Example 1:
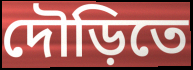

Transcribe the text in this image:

দৌড়িতে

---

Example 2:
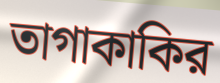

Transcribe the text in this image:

তাগাকাকির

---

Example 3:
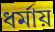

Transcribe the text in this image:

ধর্মায়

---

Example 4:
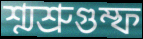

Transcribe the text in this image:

শ্মশ্রুগুম্ফ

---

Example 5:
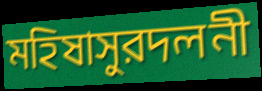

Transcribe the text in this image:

মহিষাসুরদলনী